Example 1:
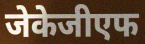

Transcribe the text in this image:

जेकेजीएफ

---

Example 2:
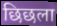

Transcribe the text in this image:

छिछला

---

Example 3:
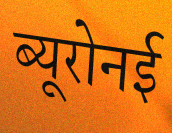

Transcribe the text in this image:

ब्यूरोनई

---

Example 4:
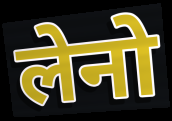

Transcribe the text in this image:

लेनो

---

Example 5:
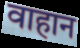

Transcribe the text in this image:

वाहान